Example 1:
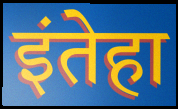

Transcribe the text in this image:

इंतेहा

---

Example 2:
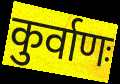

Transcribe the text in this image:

कुर्वाणः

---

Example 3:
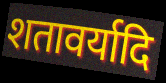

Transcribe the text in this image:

शतावर्यादि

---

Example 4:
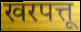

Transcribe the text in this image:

खरपत्तू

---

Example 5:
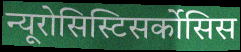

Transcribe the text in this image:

न्यूरोसिस्टिसर्कोसिस